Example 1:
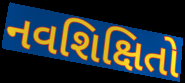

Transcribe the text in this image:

નવશિક્ષિતો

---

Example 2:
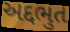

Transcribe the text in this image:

અદ્દભુત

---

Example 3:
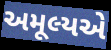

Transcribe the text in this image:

અમૂલ્યએ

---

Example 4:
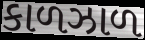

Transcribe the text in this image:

કાળઝાળ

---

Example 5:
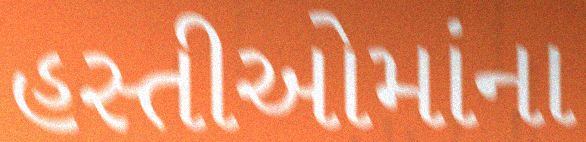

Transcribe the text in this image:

હસ્તીઓમાંના